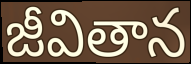
జీవితాన